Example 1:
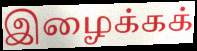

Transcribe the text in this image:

இழைக்கக்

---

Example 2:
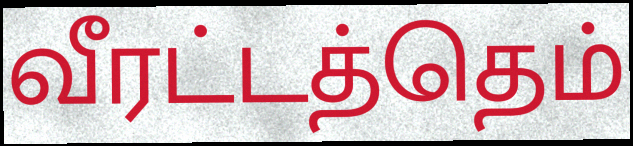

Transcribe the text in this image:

வீரட்டத்தெம்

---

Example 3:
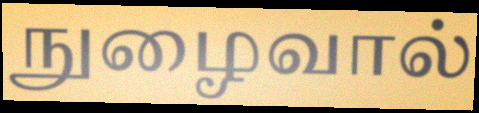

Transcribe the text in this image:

நுழைவால்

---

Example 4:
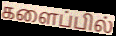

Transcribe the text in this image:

களைப்பில்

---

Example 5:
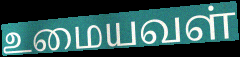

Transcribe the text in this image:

உமையவள்